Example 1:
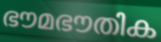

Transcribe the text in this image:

ഭൗമഭൗതിക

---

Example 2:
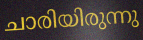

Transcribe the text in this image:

ചാരിയിരുന്നു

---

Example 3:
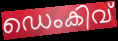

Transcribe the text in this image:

ഡെംകിവ്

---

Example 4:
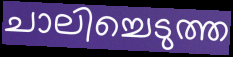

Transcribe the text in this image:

ചാലിച്ചെടുത്ത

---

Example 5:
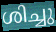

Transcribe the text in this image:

ശിച്ചു